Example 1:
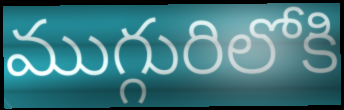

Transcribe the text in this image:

ముగ్గురిలోకి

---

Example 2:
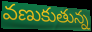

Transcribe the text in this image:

వణుకుతున్న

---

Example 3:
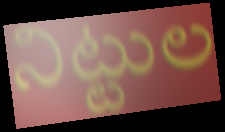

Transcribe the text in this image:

నిట్టుల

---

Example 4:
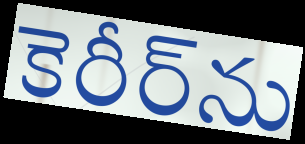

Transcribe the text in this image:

కెరీర్‌ను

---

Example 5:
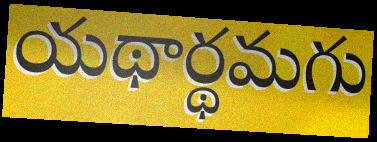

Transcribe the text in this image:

యథార్థమగు